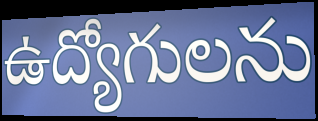
ఉద్యోగులను